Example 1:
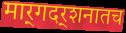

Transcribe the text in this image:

मार्गदर्शनातच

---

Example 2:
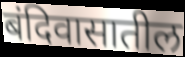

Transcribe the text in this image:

बंदिवासातील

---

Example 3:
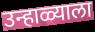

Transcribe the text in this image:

उन्हाळ्याला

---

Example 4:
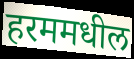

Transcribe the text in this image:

हरममधील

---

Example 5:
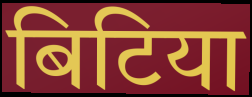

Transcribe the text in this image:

बिटिया